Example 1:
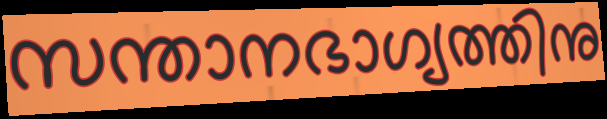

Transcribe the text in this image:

സന്താനഭാഗ്യത്തിനു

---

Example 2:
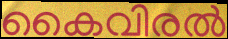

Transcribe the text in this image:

കൈവിരൽ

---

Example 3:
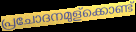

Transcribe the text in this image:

പ്രചോദനമുള്ക്കൊണ്ട്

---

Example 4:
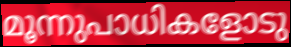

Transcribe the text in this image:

മൂന്നുപാധികളോടു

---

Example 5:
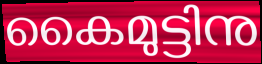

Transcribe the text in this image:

കൈമുട്ടിനു